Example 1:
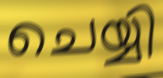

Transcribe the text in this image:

ചെയ്യി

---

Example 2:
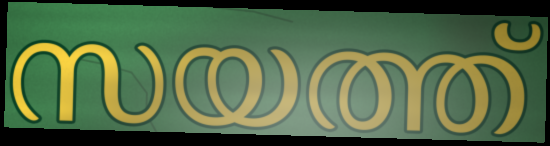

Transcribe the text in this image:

സയത്ത്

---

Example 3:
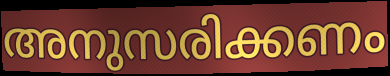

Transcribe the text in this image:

അനുസരിക്കണം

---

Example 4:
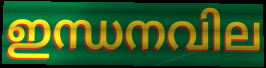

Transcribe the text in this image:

ഇന്ധനവില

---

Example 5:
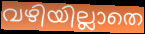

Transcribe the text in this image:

വഴിയില്ലാതെ